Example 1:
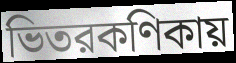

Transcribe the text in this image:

ভিতরকণিকায়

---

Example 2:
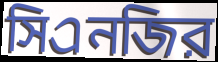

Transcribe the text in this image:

সিএনজির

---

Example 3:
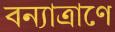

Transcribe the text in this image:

বন্যাত্রাণে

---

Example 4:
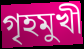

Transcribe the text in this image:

গৃহমুখী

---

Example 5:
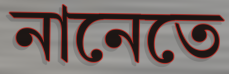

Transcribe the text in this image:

নানেতে